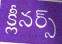
క్లీనర్స్